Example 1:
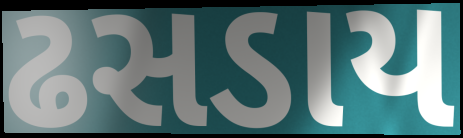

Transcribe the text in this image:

ઢસડાય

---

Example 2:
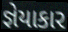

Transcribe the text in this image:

જ્ઞેયાકાર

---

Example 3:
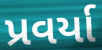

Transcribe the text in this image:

પ્રવર્યા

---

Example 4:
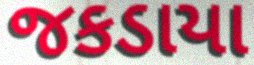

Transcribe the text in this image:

જકડાયા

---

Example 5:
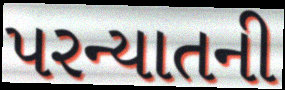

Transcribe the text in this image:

પરન્યાતની